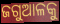
ଜଗୁଆଳକୁ